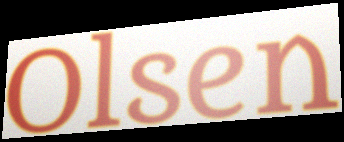
Olsen